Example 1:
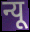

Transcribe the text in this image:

न्यू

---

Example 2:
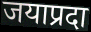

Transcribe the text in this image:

जयाप्रदा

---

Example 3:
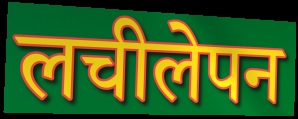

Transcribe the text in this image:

लचीलेपन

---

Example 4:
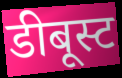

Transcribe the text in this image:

डीबूस्ट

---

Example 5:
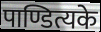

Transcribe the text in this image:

पाण्डित्यके